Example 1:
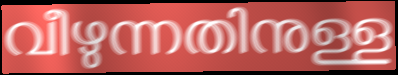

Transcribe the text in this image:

വീഴുന്നതിനുള്ള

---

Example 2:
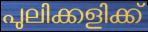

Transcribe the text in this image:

പുലിക്കളിക്ക്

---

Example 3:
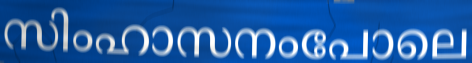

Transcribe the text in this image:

സിംഹാസനംപോലെ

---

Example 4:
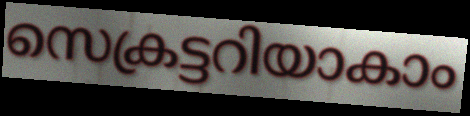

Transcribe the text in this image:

സെക്രട്ടറിയാകാം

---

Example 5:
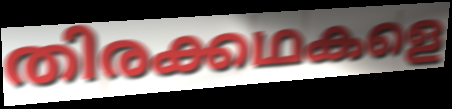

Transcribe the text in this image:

തിരക്കഥകളെ